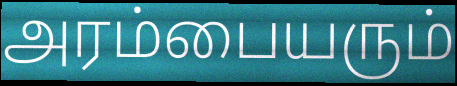
அரம்பையரும்